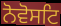
ਨੋਵੋਸਟਿ